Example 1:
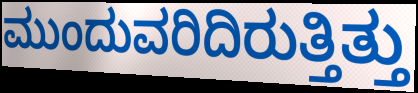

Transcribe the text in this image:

ಮುಂದುವರಿದಿರುತ್ತಿತ್ತು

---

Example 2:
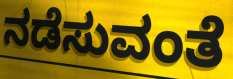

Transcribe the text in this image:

ನಡೆಸುವಂತೆ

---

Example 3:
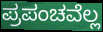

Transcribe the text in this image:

ಪ್ರಪಂಚವೆಲ್ಲ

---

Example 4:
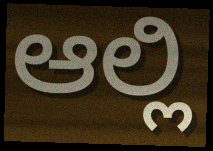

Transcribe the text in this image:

ಆಲ್ಲಿ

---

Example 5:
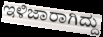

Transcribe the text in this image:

ಇಳಿಜಾರಾಗಿದ್ದು